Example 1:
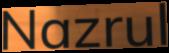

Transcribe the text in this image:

Nazrul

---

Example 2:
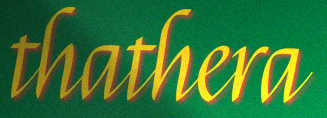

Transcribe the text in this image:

thathera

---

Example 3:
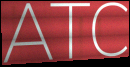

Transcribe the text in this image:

ATC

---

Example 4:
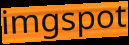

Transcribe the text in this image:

imgspot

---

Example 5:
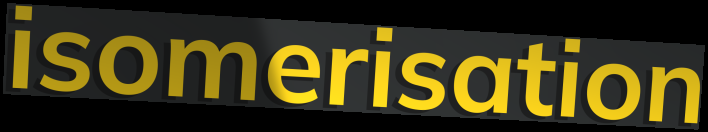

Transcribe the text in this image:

isomerisation